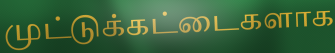
முட்டுக்கட்டைகளாக